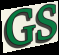
GS